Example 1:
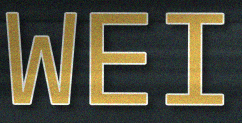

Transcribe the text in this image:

WEI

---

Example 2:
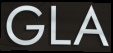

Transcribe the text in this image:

GLA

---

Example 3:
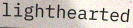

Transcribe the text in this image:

lighthearted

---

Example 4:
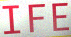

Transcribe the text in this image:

IFE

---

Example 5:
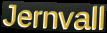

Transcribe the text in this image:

Jernvall